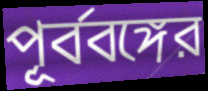
পূর্ববঙ্গের